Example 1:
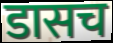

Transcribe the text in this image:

डासच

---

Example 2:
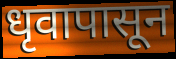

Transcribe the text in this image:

धृवापासून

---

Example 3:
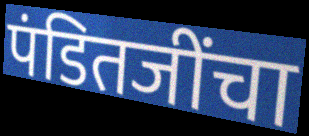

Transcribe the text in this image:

पंडितजींचा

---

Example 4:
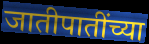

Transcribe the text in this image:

जातीपातींच्या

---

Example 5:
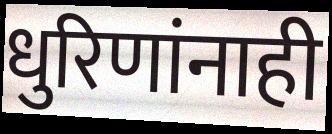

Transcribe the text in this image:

धुरिणांनाही